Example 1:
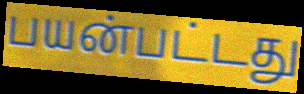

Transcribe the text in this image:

பயன்பட்டது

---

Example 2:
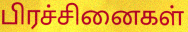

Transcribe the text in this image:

பிரச்சினைகள்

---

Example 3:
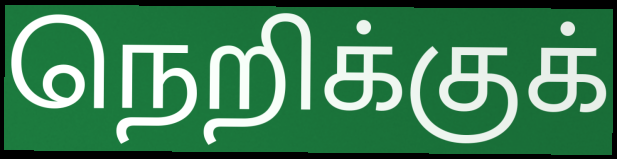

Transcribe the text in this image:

நெறிக்குக்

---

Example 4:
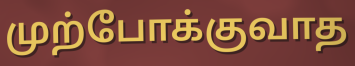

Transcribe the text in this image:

முற்போக்குவாத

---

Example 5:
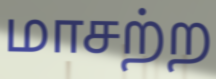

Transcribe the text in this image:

மாசற்ற